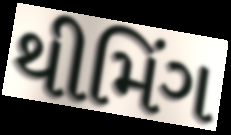
થીમિંગ